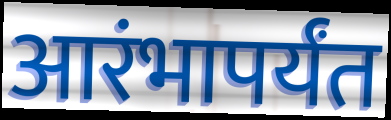
आरंभापर्यंत